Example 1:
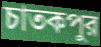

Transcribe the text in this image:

চাতকপুর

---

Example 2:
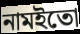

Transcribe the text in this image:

নামইতো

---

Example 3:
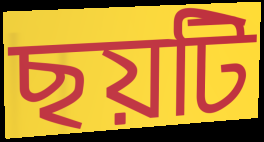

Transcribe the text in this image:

ছয়টি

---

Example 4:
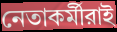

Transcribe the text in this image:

নেতাকর্মীরাই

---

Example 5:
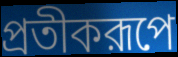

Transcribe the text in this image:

প্রতীকরূপে